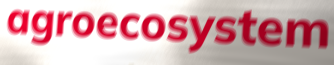
agroecosystem